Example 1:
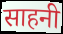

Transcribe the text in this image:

साहनी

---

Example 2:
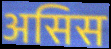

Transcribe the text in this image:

असिस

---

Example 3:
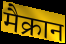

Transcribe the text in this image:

मैक्रान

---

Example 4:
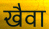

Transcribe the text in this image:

खैवा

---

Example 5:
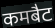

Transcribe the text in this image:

कमबैट